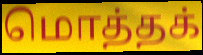
மொத்தக்